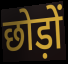
छोड़ों